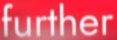
further